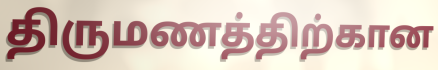
திருமணத்திற்கான